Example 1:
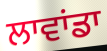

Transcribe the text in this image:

ਲਾਵਾਂਡਾ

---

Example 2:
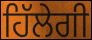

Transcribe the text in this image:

ਹਿੱਲੇਗੀ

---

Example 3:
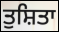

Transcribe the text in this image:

ਤੁਸ਼ਿਤਾ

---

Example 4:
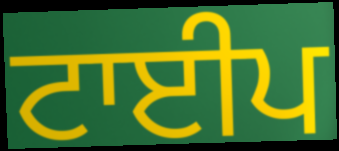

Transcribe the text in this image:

ਟਾਈਪ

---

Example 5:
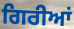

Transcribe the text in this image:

ਗਿਰੀਆਂ